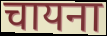
चायना